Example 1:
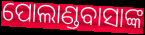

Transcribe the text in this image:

ପୋଲାଣ୍ଡବାସାଙ୍କ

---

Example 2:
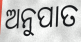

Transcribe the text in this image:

ଅନୁପାତ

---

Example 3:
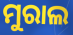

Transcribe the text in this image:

ମୁରାଲ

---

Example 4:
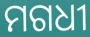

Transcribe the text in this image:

ମଗଧୀ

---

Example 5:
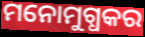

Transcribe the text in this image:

ମନୋମୁଗ୍ଧକର